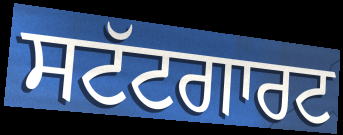
ਸਟੱਟਗਾਰਟ